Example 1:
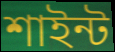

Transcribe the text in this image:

শাইন্ট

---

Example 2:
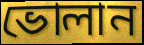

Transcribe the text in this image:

ভোলান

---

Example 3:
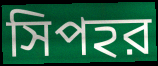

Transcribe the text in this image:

সিপহর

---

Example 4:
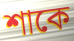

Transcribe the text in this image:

শাকে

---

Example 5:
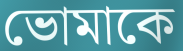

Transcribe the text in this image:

ভোমাকে